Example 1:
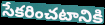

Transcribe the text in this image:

సేకరించటానికి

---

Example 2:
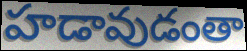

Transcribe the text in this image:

హడావుడంతా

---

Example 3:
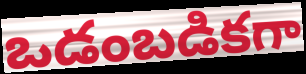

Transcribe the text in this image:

ఒడంబడికగా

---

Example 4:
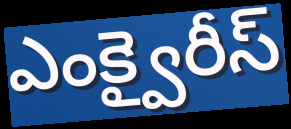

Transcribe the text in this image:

ఎంక్వైరీస్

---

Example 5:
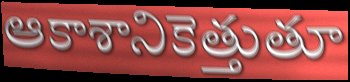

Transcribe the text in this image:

ఆకాశానికెత్తుతూ